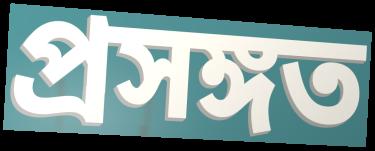
প্ৰসঙ্গত